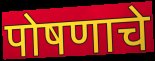
पोषणाचे